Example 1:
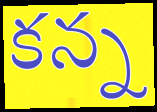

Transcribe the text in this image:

కన్న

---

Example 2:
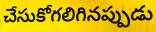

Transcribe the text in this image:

చేసుకోగలిగినప్పుడు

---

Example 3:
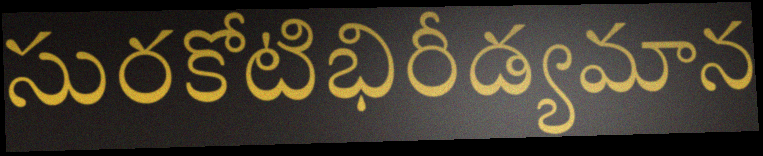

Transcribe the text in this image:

సురకోటిభిరీడ్యమాన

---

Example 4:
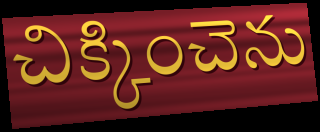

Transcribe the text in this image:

చిక్కించెను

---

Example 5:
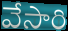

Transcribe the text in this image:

వేసారి